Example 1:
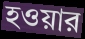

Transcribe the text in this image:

হওয়ার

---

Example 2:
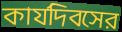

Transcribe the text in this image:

কার্যদিবসের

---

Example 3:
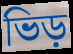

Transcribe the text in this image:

ভিড়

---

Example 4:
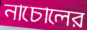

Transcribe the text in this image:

নাচোলের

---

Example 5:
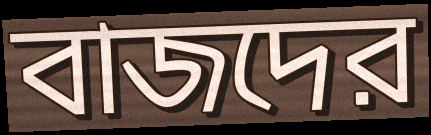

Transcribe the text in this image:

বাজদের